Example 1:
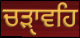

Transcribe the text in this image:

ਚੜੑਾਵਹਿ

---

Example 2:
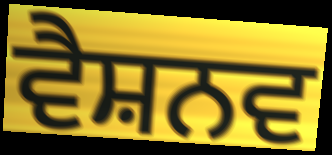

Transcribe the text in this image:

ਵੈਸ਼ਨਵ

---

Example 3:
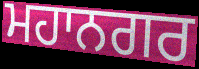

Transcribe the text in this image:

ਮਹਾਨਗਰ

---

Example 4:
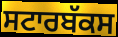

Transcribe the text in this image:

ਸਟਾਰਬੱਕਸ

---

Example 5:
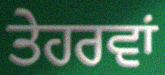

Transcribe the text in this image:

ਤੇਹਰਵਾਂ